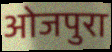
ओजपुरा